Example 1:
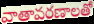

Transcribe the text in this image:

వాతావరణాలతో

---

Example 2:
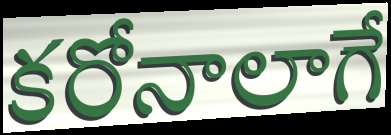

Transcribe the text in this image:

కరోనాలాగే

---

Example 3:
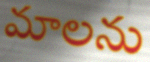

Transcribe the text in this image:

మాలను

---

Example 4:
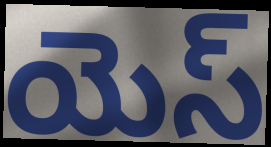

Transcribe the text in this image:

యెస్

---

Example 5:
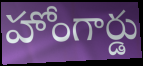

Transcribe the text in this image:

హోంగార్డు